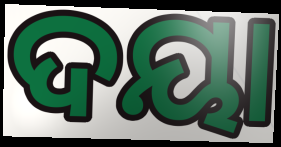
ଦୟା